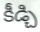
కీడ్చి